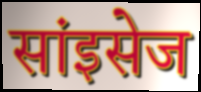
सांइसेज